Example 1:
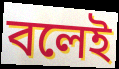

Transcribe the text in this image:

বলেই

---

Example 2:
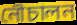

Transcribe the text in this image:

নৌচালন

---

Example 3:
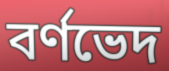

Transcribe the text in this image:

বর্ণভেদ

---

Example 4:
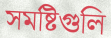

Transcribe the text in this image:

সমষ্টিগুলি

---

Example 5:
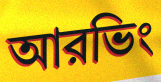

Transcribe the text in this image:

আরভিং